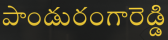
పాండురంగారెడ్డి